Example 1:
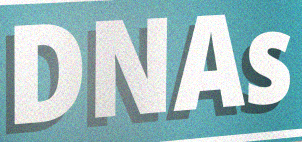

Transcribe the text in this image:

DNAs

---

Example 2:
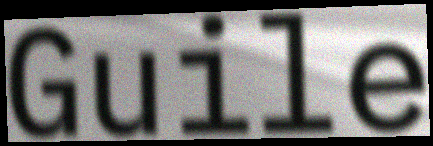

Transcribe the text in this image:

Guile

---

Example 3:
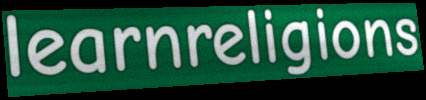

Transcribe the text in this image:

learnreligions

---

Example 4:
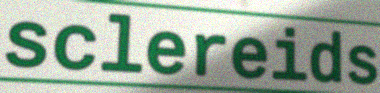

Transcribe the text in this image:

sclereids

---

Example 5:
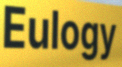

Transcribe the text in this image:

Eulogy